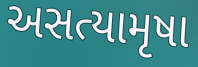
અસત્યામૃષા